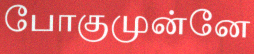
போகுமுன்னே